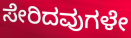
ಸೇರಿದವುಗಳೇ